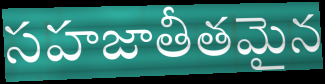
సహజాతీతమైన